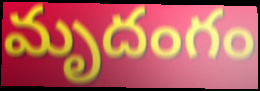
మృదంగం